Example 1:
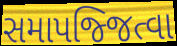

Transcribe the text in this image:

સમાપજ્જિત્વા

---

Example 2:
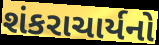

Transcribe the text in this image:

શંકરાચાર્યનો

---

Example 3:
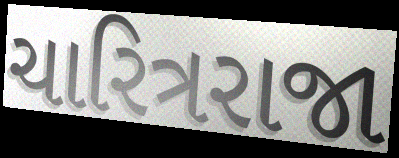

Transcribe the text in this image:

ચારિત્રરાજા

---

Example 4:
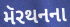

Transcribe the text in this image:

મૅરથનના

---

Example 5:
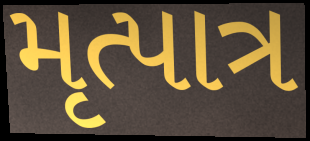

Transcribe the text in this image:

મૃત્પાત્ર